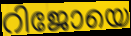
റിജോയെ